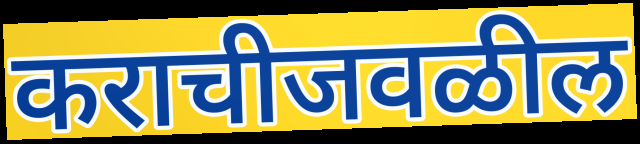
कराचीजवळील